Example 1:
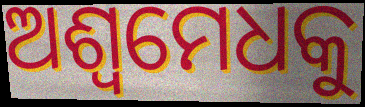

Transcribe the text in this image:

ଅଶ୍ୱମେଧକୁ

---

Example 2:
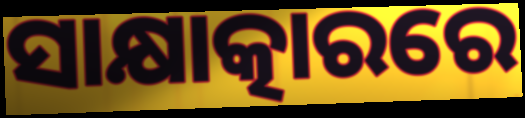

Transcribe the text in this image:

ସାକ୍ଷାତ୍କାରରେ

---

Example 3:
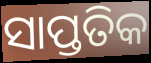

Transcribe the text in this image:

ସାପ୍ତତିକ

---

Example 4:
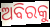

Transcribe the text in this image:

ଅବିରକୁ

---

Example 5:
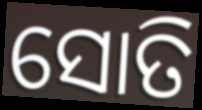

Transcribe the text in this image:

ସୋତି